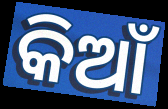
କିଆଁ